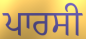
ਪਾਰਸੀ